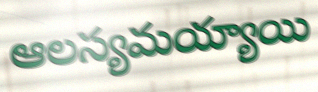
ఆలస్యమయ్యాయి